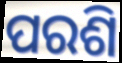
ପରଶି